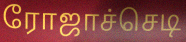
ரோஜாச்செடி